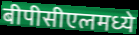
बीपीसीएलमध्ये